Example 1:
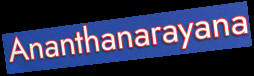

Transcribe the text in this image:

Ananthanarayana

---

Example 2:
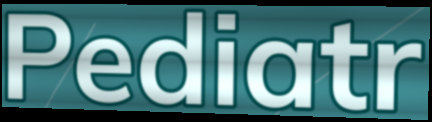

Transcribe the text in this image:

Pediatr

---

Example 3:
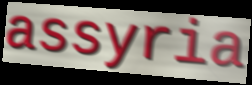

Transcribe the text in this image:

assyria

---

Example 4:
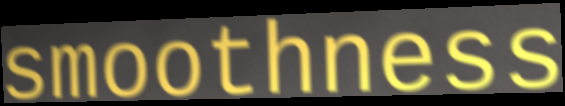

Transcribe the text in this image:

smoothness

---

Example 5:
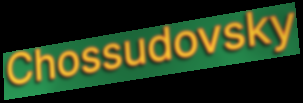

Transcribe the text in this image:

Chossudovsky